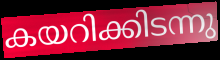
കയറിക്കിടന്നു